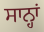
ਸਾਨ੍ਹਾਂ